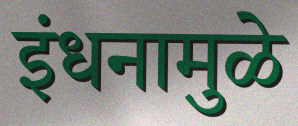
इंधनामुळे